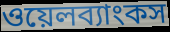
ওয়েলব্যাংকস